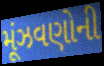
મૂંઝવણોની